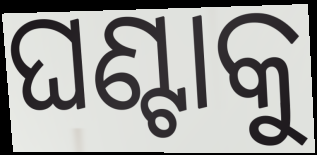
ଘଣ୍ଟାକୁ